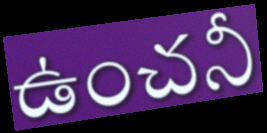
ఉంచనీ